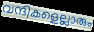
വന്ദികളെല്ലാരും